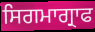
ਸਿਗਮਾਗ੍ਰਾਫ